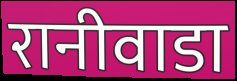
रानीवाडा